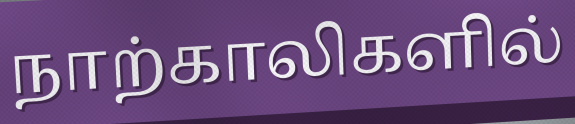
நாற்காலிகளில்